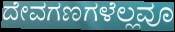
ದೇವಗಣಗಳೆಲ್ಲವೂ